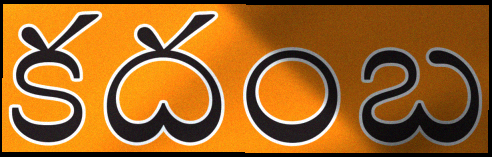
కదంబ